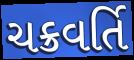
ચક્રવર્તિ